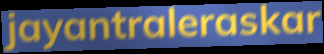
jayantraleraskar